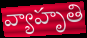
వ్యాహృతి